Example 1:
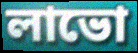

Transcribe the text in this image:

লাভো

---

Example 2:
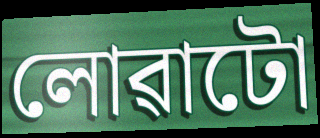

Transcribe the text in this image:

লোৱাটো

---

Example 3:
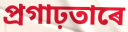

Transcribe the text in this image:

প্ৰগাঢ়তাৰে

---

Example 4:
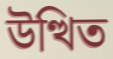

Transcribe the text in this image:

উত্থিত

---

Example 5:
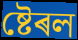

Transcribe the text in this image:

ষ্টেৰল